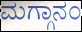
ಮಗ್ಗಾನಂ